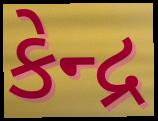
કેન્દ્ર